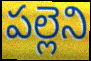
పల్లెని